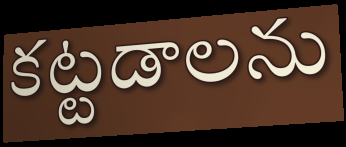
కట్టడాలను